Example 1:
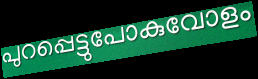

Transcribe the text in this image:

പുറപ്പെട്ടുപോകുവോളം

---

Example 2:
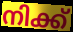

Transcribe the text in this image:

നിക്ക്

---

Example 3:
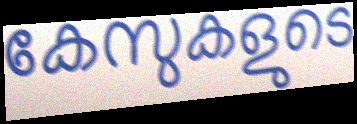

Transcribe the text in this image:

കേസുകളുടെ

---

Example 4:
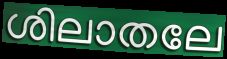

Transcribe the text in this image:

ശിലാതലേ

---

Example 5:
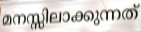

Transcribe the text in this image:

മനസ്സിലാക്കുന്നത്